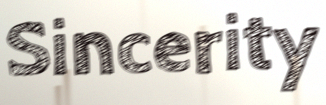
Sincerity